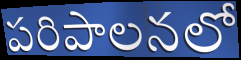
పరిపాలనలో